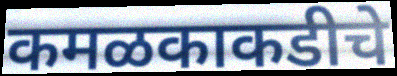
कमळकाकडीचे